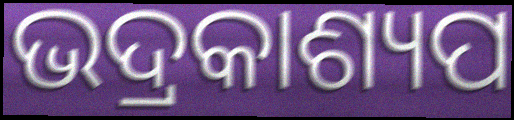
ଭଦ୍ରକାଶ୍ୟପ